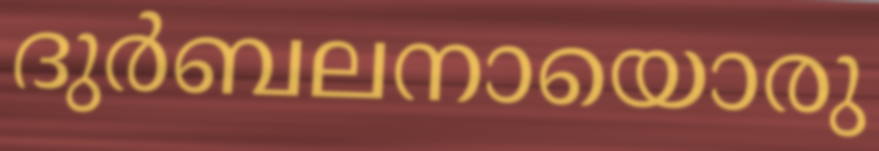
ദുർബലനായൊരു